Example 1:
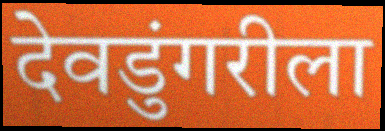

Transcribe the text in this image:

देवडुंगरीला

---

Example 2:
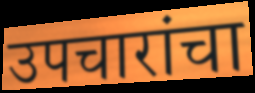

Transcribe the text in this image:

उपचारांचा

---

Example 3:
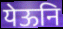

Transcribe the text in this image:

येऊनि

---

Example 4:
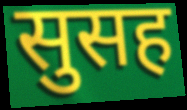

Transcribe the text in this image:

सुसह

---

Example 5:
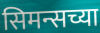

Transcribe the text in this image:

सिमन्सच्या